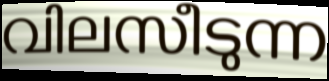
വിലസീടുന്ന